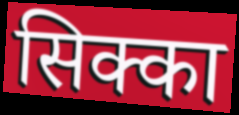
सिक्का